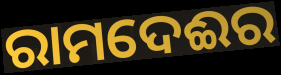
ରାମଦେଈର